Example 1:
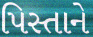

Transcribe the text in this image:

પિસ્તાને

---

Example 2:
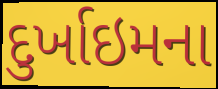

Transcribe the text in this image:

દુર્ખાઇમના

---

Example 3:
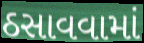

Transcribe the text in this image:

ઠસાવવામાં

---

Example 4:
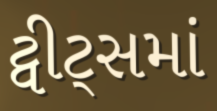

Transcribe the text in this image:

ટ્વીટ્સમાં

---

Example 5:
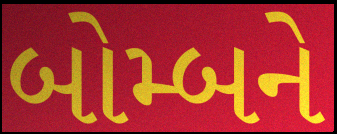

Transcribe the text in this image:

બોમ્બને